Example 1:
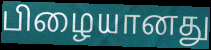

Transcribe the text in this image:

பிழையானது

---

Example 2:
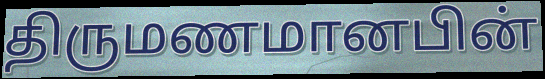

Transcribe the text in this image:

திருமணமானபின்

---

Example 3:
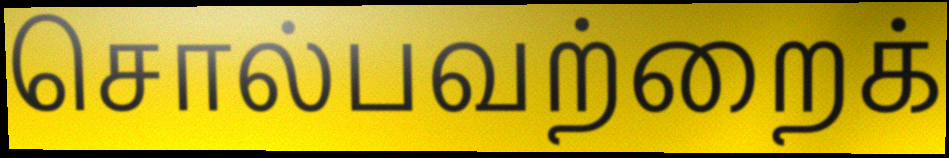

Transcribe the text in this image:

சொல்பவற்றைக்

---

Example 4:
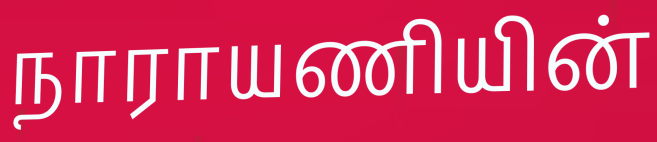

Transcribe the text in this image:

நாராயணியின்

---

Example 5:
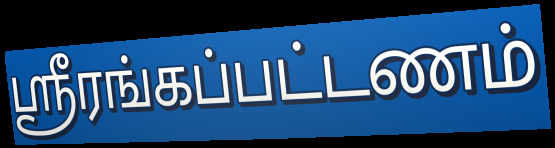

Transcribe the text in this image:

ஸ்ரீரங்கப்பட்டணம்